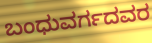
ಬಂಧುವರ್ಗದವರ